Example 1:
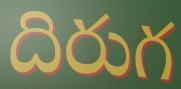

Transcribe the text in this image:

దిరుగ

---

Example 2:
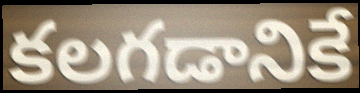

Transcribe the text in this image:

కలగడానికే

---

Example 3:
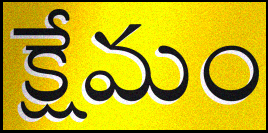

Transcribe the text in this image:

క్షేమం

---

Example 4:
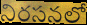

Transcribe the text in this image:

నిరసనలో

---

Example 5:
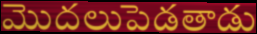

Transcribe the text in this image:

మొదలుపెడతాడు